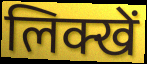
लिक्खें